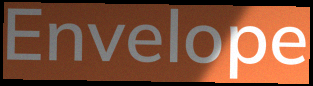
Envelope